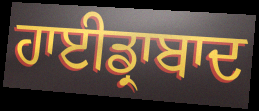
ਹਾਈਡ੍ਰਾਬਾਦ